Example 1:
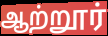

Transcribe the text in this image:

ஆற்றூர்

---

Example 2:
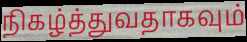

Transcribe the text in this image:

நிகழ்த்துவதாகவும்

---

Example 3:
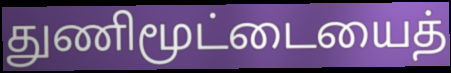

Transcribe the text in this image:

துணிமூட்டையைத்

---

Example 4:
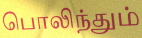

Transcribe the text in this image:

பொலிந்தும்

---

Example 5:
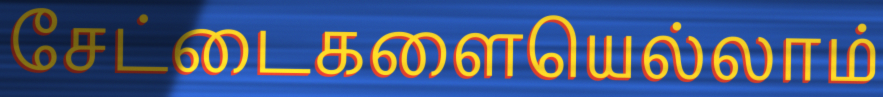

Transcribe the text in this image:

சேட்டைகளையெல்லாம்